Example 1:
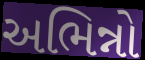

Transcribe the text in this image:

અભિન્નો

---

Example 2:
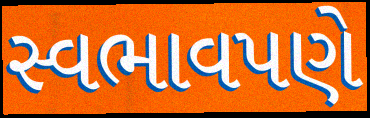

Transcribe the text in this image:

સ્વભાવપણે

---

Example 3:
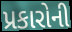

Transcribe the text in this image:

પ્રકારોની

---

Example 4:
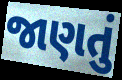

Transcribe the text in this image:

જાણતું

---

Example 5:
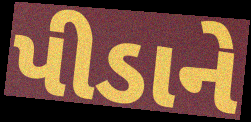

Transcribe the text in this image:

પીડાને